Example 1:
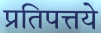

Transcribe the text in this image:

प्रतिपत्तये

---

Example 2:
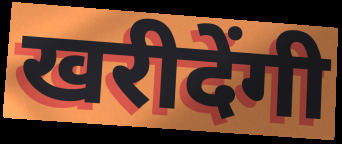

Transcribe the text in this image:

खरीदेंगी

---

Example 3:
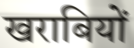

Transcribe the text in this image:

खराबियों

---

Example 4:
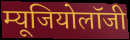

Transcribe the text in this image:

म्यूजियोलॉजी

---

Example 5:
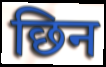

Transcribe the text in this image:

छिन